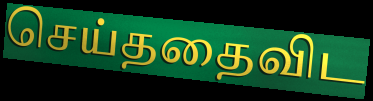
செய்ததைவிட